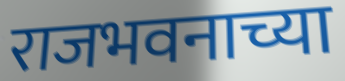
राजभवनाच्या